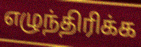
எழுந்திரிக்க